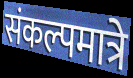
संकल्पमात्रे